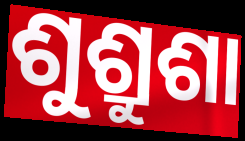
ଶୁଶ୍ରୁଶା